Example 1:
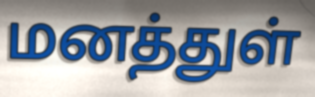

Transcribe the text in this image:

மனத்துள்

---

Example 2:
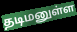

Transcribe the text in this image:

தடிமனுள்ள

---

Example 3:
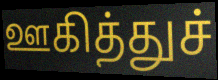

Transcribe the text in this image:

ஊகித்துச்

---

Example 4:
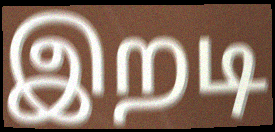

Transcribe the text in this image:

இறடி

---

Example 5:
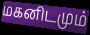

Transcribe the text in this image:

மகனிடமும்